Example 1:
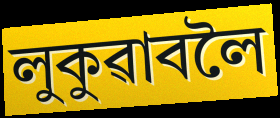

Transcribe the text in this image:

লুকুৱাবলৈ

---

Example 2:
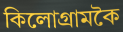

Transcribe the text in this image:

কিলোগ্ৰামকৈ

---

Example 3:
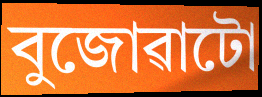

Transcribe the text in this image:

বুজোৱাটো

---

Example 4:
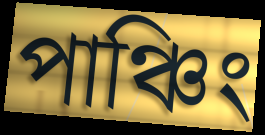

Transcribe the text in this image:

পাঞ্চিং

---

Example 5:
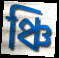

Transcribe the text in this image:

ঞ্চি